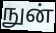
நுன்